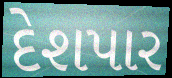
દેશપાર